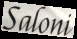
Saloni